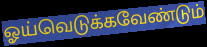
ஓய்வெடுக்கவேண்டும்